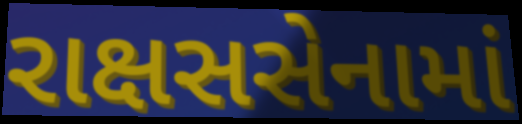
રાક્ષસસેનામાં